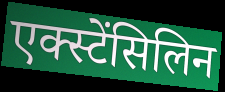
एक्स्टेंसिलिन